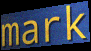
mark